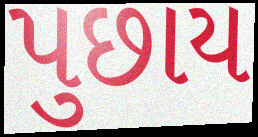
પુછાય